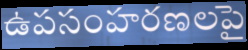
ఉపసంహరణలపై